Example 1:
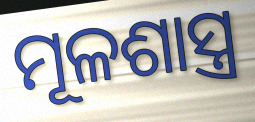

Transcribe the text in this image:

ମୂଳଶାସ୍ତ୍ର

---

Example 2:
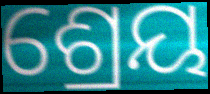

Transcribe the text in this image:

ଶ୍ରେୟ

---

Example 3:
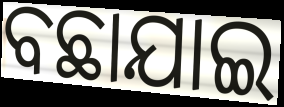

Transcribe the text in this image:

ବଛାଯାଇ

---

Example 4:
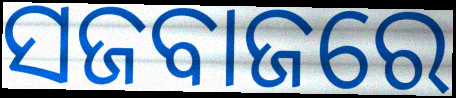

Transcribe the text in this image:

ସଜବାଜରେ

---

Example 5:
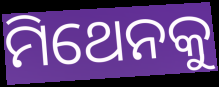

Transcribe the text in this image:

ମିଥେନକୁ